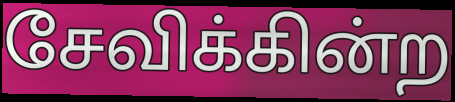
சேவிக்கின்ற